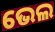
ଭେଲ